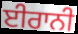
ਈਰਾਨੀ